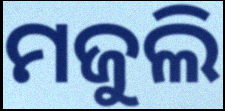
ମଜୁଲି